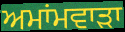
ਅਮਾਂਮਵਾੜਾ